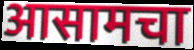
आसामचा